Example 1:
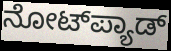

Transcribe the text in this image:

ನೋಟ್‌ಪ್ಯಾಡ್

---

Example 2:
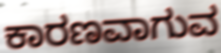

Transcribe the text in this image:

ಕಾರಣವಾಗುವ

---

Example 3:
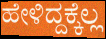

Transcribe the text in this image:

ಹೇಳಿದ್ದಕ್ಕೆಲ್ಲ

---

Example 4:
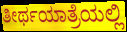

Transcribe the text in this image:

ತೀರ್ಥಯಾತ್ರೆಯಲ್ಲಿ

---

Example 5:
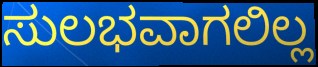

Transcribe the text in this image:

ಸುಲಭವಾಗಲಿಲ್ಲ